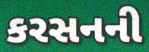
કરસનની